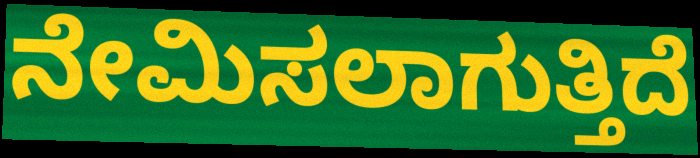
ನೇಮಿಸಲಾಗುತ್ತಿದೆ